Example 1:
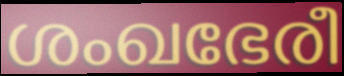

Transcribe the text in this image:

ശംഖഭേരീ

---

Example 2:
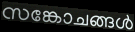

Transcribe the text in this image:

സങ്കോചങ്ങൾ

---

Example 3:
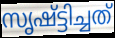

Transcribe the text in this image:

സൃഷ്ട്ടിച്ചത്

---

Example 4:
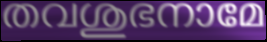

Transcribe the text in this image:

തവശുഭനാമേ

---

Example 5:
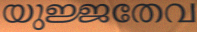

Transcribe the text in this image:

യുജ്ജതേവ